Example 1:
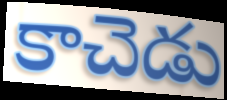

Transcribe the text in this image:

కాచెడు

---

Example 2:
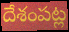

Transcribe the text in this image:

దేశంపట్ల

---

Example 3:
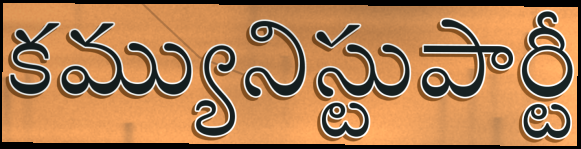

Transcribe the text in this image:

కమ్యునిస్టుపార్టీ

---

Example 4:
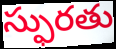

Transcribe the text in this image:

స్ఫురతు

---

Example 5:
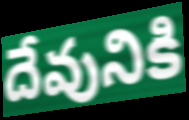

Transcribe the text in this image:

దేవునికి